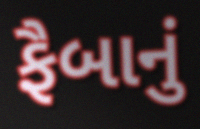
ફૈબાનું